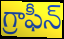
గ్రాఫీన్